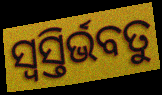
ସ୍ୱସ୍ତିର୍ଭବତୁ